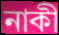
নাকী